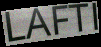
LAFTI